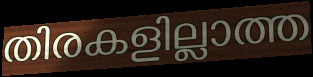
തിരകളില്ലാത്ത